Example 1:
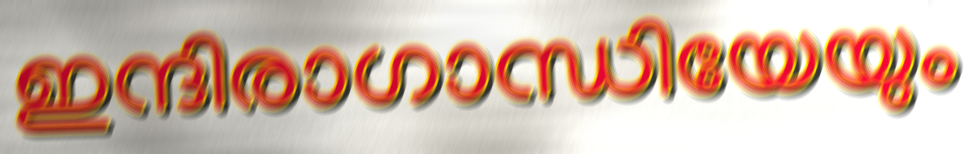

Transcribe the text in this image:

ഇന്ദിരാഗാന്ധിയേയും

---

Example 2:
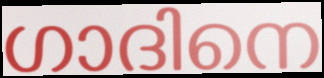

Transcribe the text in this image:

ഗാദിനെ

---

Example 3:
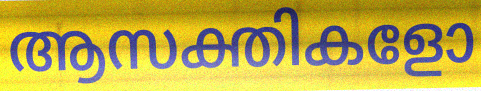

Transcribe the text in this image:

ആസക്തികളോ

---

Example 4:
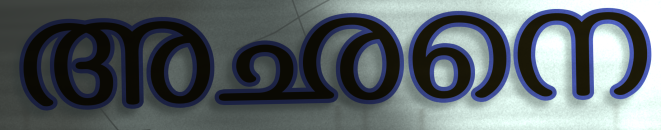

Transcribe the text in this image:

അഛനെ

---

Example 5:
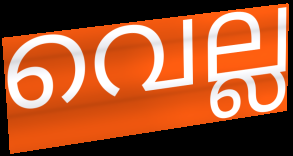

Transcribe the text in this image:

വെല്ല